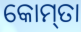
କୋମ୍‌ତା